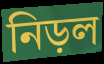
নিড়ল